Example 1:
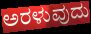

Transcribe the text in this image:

ಅರಳುವುದು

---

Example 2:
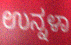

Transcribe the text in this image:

ಉನ್ನಳಾ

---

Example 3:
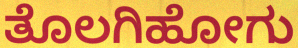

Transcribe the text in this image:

ತೊಲಗಿಹೋಗು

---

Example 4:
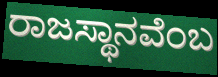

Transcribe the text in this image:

ರಾಜಸ್ಥಾನವೆಂಬ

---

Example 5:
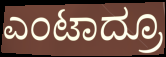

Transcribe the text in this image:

ಎಂಟಾದ್ರೂ